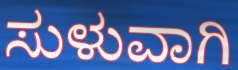
ಸುಳುವಾಗಿ